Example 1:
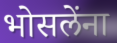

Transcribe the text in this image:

भोसलेंना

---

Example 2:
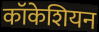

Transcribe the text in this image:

कॉकेशियन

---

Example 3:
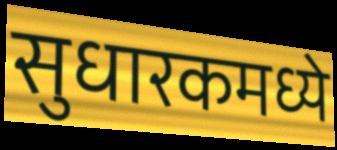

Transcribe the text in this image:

सुधारकमध्ये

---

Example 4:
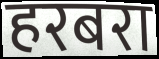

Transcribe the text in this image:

हरबरा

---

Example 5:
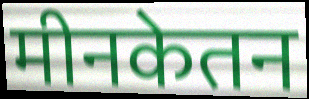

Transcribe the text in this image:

मीनकेतन